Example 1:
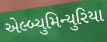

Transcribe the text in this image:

એલ્બ્યુમિન્યુરિયા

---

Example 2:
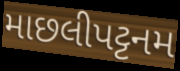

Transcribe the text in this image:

માછલીપટ્ટનમ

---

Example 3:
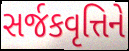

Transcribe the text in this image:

સર્જકવૃત્તિને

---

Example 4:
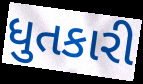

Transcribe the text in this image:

ધુતકારી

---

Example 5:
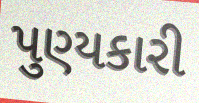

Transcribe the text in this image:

પુણ્યકારી